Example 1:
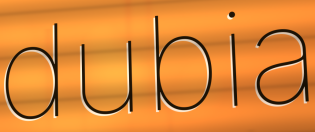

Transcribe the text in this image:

dubia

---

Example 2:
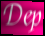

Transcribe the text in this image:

Dep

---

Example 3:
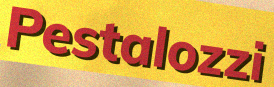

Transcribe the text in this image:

Pestalozzi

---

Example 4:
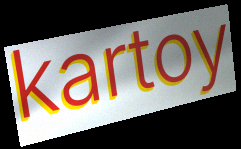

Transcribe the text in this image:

kartoy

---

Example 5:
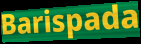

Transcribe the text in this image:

Barispada